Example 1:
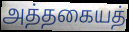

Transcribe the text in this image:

அத்தகையத்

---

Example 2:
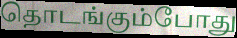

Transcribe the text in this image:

தொடங்கும்போது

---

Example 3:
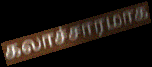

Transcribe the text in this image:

கலாச்சாரமாக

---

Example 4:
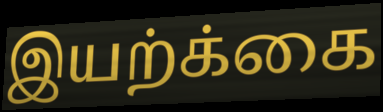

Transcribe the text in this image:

இயற்க்கை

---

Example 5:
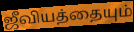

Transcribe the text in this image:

ஜீவியத்தையும்